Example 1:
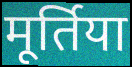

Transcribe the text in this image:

मूर्तिया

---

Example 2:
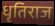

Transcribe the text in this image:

धृतिराज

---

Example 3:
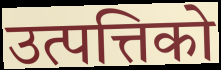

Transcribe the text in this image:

उत्पत्तिको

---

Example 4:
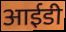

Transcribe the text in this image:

आईडी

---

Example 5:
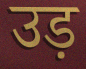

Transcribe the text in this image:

उड़